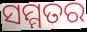
ସମ୍ମତର